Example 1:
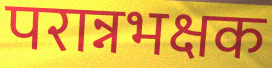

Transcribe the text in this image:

परान्नभक्षक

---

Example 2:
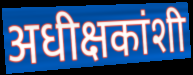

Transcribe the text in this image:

अधीक्षकांशी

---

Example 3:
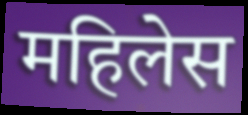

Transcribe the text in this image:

महिलेस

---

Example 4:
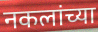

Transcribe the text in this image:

नकलांच्या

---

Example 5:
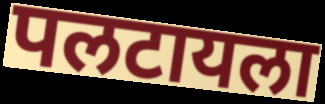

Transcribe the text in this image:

पलटायला